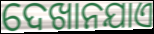
ଦେଖାନଯାଏ